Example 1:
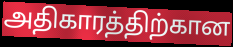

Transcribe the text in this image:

அதிகாரத்திற்கான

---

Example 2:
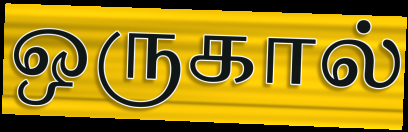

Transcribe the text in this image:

ஒருகால்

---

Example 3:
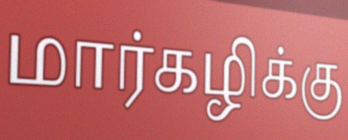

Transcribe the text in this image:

மார்கழிக்கு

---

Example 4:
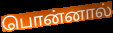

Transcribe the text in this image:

பொன்னால்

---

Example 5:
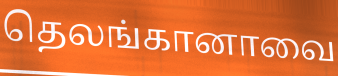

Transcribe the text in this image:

தெலங்கானாவை